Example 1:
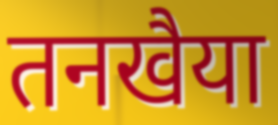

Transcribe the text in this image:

तनखैया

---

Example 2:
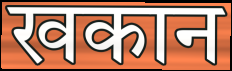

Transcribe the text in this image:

खकान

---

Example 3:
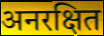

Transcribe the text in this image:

अनरक्षित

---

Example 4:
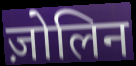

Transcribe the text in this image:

ज़ोलिन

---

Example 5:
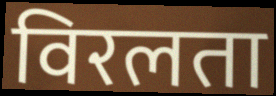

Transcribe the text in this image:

विरलता